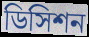
ডিসিশন